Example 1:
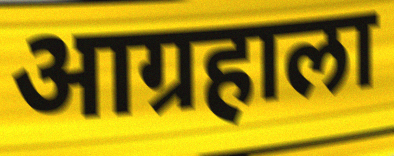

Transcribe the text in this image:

आग्रहाला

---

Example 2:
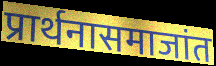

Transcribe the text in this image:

प्रार्थनासमाजांत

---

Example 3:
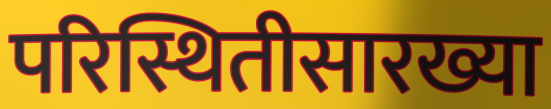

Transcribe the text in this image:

परिस्थितीसारख्या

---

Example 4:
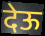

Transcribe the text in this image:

देऊ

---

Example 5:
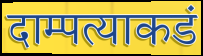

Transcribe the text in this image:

दाम्पत्याकडं